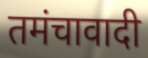
तमंचावादी